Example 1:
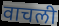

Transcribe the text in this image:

वाचली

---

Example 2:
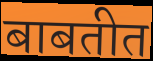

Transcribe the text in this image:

बाबतीत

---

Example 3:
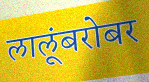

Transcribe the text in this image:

लालूंबरोबर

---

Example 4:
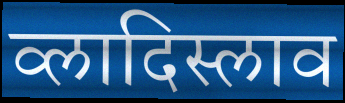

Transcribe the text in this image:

व्लादिस्लाव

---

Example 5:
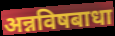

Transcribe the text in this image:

अन्नविषबाधा